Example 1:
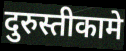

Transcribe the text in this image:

दुरुस्तीकामे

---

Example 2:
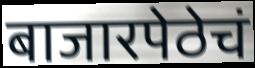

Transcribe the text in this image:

बाजारपेठेचं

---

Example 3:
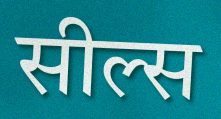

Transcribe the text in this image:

सील्स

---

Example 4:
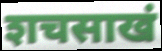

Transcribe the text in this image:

शचसाखं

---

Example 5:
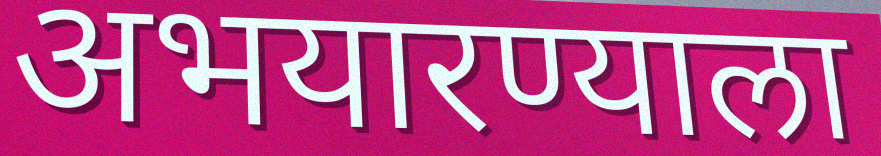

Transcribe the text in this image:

अभयारण्याला